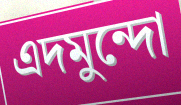
এদমুন্দো